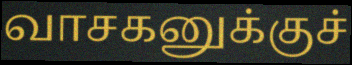
வாசகனுக்குச்